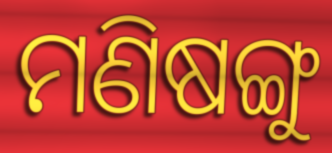
ମଣିଷଙ୍ଗୁ